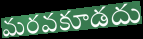
మరవకూడదు